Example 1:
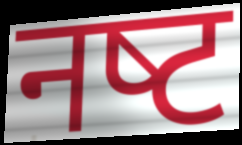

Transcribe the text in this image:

नष्‍ट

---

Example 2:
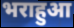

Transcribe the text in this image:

भराहुआ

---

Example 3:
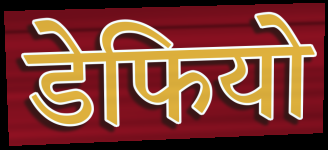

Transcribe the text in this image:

डेफियो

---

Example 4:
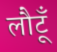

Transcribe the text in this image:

लौटूँ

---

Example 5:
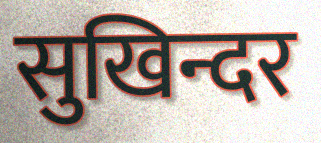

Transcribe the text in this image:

सुखिन्दर